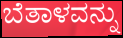
ಬೆತಾಳವನ್ನು